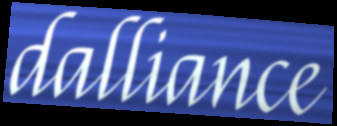
dalliance